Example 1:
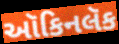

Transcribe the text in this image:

ઑકિનલૅક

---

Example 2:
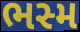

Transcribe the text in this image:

ભસ્મ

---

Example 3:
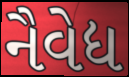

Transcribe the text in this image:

નૈવેદ્ય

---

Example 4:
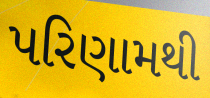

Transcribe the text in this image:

પરિણામથી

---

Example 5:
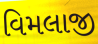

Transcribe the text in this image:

વિમલાજી